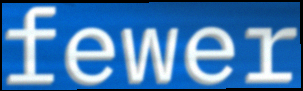
fewer